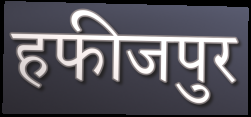
हफीजपुर